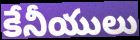
కేనీయులు